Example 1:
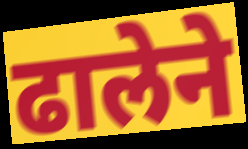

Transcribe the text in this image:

ढालेने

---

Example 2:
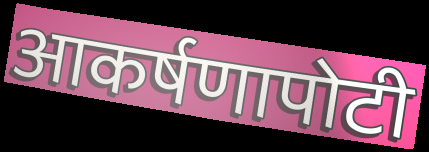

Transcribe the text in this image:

आकर्षणापोटी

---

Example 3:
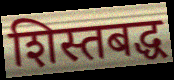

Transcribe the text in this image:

शिस्तबद्ध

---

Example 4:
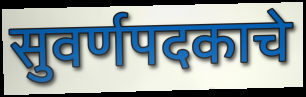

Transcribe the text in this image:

सुवर्णपदकाचे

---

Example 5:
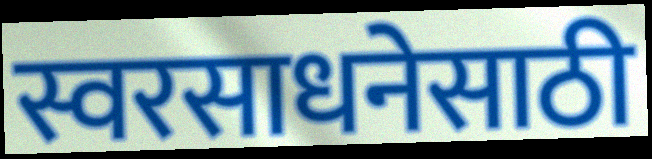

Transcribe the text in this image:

स्वरसाधनेसाठी